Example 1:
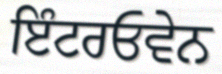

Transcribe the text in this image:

ਇੰਟਰਓਵੇਨ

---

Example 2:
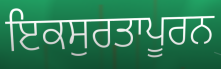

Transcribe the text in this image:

ਇਕਸੁਰਤਾਪੂਰਨ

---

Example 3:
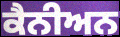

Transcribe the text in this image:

ਕੈਨੀਅਨ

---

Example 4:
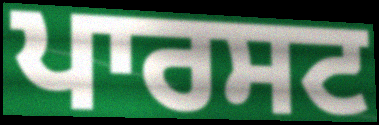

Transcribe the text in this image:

ਪਾਰਸਟ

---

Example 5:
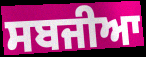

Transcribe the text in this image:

ਸਬਜੀਆ